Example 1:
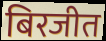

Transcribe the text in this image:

बिरजीत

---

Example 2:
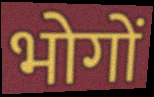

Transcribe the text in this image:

भोगों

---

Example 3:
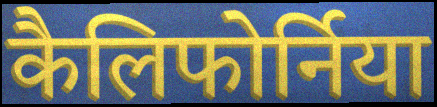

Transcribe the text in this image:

कैलिफोर्निया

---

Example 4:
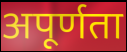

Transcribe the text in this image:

अपूर्णता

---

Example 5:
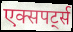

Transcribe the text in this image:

एक्सपर्ट्स